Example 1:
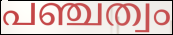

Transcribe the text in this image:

പഞ്ചത്വം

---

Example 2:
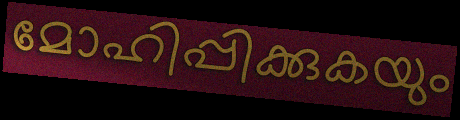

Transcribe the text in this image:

മോഹിപ്പിക്കുകയും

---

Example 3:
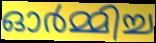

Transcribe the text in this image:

ഓർമ്മിച്ച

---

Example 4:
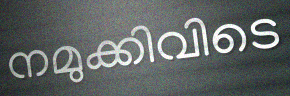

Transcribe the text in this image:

നമുക്കിവിടെ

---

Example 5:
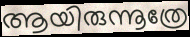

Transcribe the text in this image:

ആയിരുന്നൂത്രേ